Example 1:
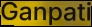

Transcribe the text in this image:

Ganpati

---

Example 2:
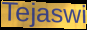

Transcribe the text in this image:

Tejaswi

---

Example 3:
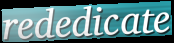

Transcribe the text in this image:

rededicate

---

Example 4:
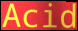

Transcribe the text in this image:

Acid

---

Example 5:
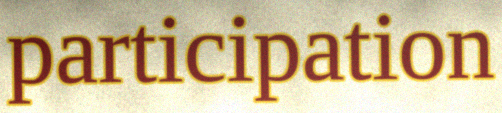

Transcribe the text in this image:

participation